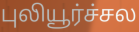
புலியூர்ச்சல